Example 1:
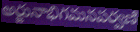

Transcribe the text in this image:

అర్జునాభిగమనపర్వణి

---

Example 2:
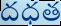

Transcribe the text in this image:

దధత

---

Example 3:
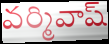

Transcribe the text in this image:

వర్మివాష్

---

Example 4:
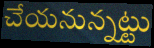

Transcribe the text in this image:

చేయనున్నట్టు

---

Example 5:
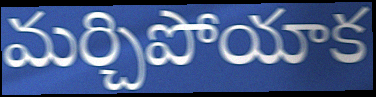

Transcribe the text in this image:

మర్చిపోయాక